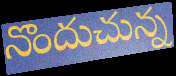
నొందుచున్న